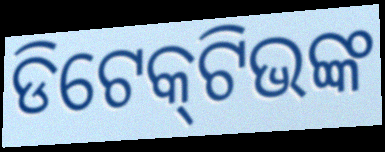
ଡିଟେକ୍‌ଟିଭଙ୍କ